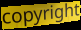
copyright